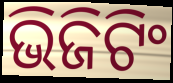
ଭିଜିଟିଂ